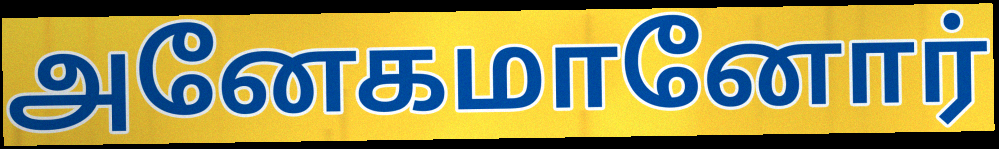
அனேகமானோர்